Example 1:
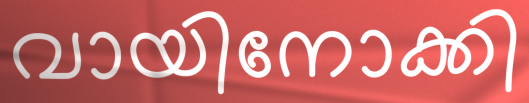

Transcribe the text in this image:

വായിനോക്കി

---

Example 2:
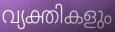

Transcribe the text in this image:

വ്യക്തികളും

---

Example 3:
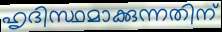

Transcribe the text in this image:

ഹൃദിസ്ഥമാക്കുന്നതിന്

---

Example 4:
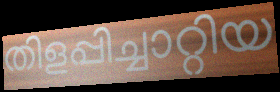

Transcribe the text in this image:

തിളപ്പിച്ചാറ്റിയ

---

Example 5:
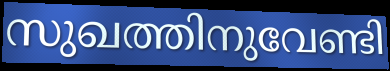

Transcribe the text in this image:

സുഖത്തിനുവേണ്ടി